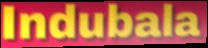
Indubala